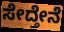
ಸೇದ್ತೇನೆ